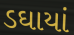
ડઘાયાં